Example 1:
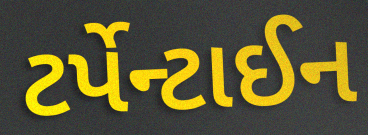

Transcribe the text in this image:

ટર્પેન્ટાઈન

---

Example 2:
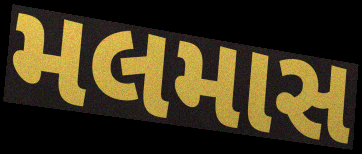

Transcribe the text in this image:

મલમાસ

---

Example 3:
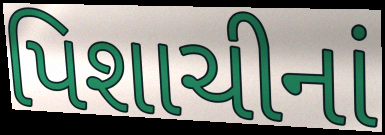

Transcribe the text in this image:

પિશાચીનાં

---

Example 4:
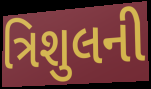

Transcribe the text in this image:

ત્રિશુલની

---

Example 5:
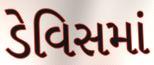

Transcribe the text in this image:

ડેવિસમાં